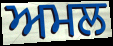
ਅਮਲ